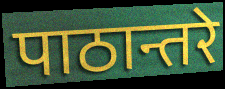
पाठान्तरे